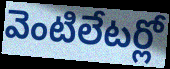
వెంటిలేటర్లో